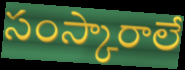
సంస్కారాలే